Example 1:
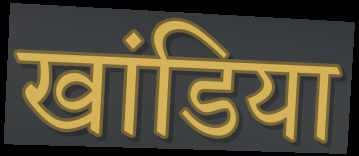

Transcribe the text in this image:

खांडिया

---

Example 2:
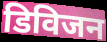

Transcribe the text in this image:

डिविजन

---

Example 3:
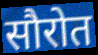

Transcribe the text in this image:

सौरोत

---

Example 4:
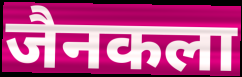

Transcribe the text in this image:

जैनकला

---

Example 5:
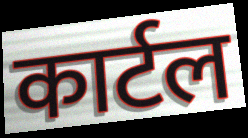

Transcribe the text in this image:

कार्टल